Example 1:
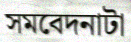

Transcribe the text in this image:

সমবেদনাটা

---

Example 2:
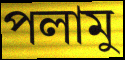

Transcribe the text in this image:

পলামু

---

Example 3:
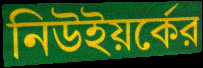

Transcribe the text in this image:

নিউইয়র্কের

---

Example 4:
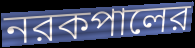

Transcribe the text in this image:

নরকপালের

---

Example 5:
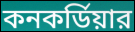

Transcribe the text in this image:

কনকর্ডিয়ার